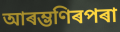
আৰম্ভণিৰপৰা